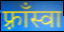
फ़्राँस्वा